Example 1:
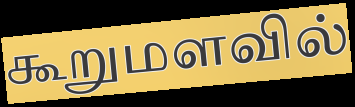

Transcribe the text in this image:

கூறுமளவில்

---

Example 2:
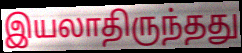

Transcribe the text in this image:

இயலாதிருந்தது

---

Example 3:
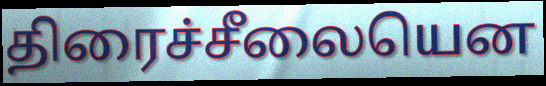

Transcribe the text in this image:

திரைச்சீலையென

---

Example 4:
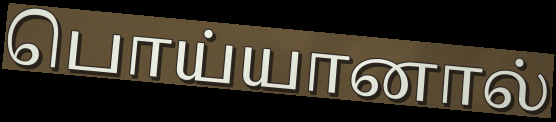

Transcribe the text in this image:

பொய்யானால்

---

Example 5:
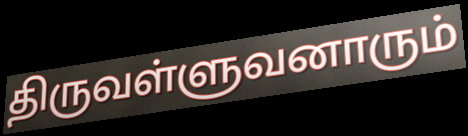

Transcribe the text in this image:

திருவள்ளுவனாரும்